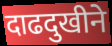
दाढदुखीने